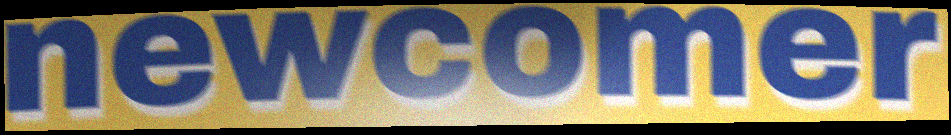
newcomer